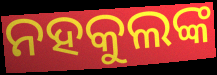
ନହକୁଲଙ୍କ